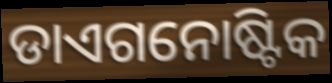
ଡାଏଗନୋଷ୍ଟିକ